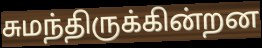
சுமந்திருக்கின்றன